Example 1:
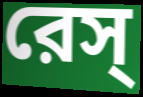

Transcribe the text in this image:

রেস্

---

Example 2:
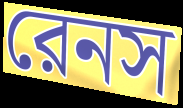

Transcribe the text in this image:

রেনস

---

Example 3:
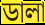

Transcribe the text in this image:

ডালা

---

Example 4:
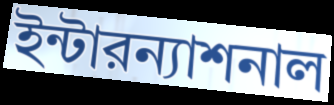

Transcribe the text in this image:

ইন্টারন্যাশনাল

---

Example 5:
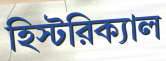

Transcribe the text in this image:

হিস্টরিক্যাল